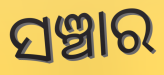
ସଞ୍ଚାର